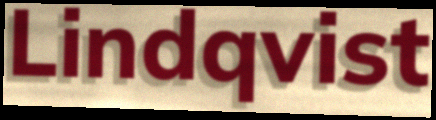
Lindqvist